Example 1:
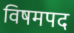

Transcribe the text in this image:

विषमपद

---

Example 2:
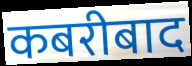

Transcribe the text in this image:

कबरीबाद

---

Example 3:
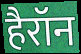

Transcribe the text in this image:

हैरॉन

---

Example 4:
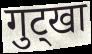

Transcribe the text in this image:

गुट्खा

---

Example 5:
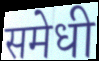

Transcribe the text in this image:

समेधी